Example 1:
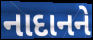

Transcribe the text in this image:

નાદાનને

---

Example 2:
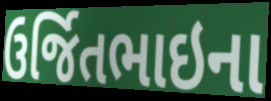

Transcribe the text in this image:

ઉર્જિતભાઇના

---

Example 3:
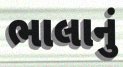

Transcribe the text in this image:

ભાલાનું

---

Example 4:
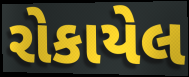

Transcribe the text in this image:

રોકાયેલ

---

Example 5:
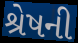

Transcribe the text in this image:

શ્રેષની